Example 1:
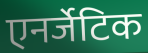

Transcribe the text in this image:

एनर्जेटिक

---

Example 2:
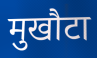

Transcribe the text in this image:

मुखौटा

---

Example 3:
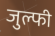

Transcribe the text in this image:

जुल्फी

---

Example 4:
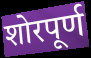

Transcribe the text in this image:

शोरपूर्ण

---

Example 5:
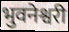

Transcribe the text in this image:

भुवनेश्वरी